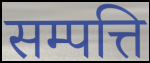
सम्पत्ति